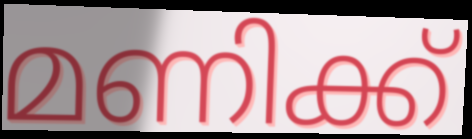
മണിക്ക്